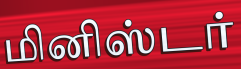
மினிஸ்டர்